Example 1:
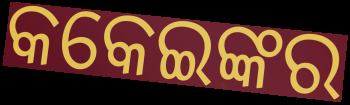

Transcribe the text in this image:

କକେଇଙ୍କର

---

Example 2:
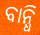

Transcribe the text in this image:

ବାନ୍ଧି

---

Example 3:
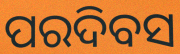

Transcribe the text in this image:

ପରଦିବସ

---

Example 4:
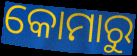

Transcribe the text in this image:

କୋମାରୁ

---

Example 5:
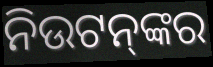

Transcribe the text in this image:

ନିଉଟନ୍‌ଙ୍କର